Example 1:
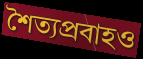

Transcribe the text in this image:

শৈত্যপ্রবাহও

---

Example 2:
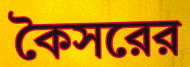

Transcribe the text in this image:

কৈসরের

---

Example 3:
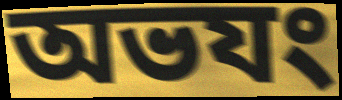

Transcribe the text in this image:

অভযং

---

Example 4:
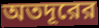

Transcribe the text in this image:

অতদূরের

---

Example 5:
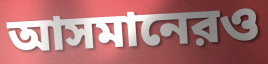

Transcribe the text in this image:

আসমানেরও